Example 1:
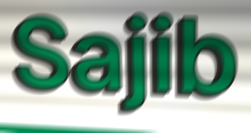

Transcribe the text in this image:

Sajib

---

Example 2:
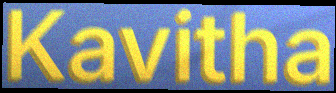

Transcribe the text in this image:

Kavitha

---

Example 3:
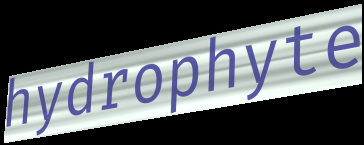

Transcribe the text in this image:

hydrophyte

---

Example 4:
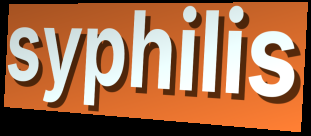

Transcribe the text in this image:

syphilis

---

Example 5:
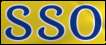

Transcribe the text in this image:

sso